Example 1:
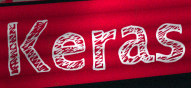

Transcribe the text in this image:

Keras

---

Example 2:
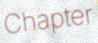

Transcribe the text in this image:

Chapter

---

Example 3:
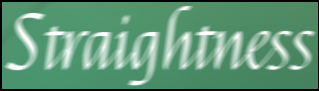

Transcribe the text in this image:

Straightness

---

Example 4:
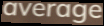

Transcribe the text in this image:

average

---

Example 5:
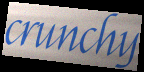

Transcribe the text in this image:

crunchy